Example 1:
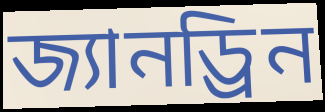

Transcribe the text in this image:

জ্যানড্রিন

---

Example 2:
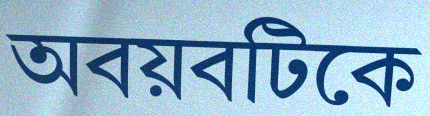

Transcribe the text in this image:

অবয়বটিকে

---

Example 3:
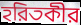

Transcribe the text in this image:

হরিতকীর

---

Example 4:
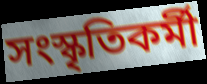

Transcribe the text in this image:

সংস্কৃতিকর্মী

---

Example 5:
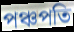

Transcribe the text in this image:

পঞ্চপতি